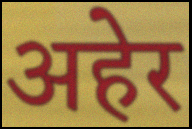
अहेर